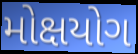
મોક્ષયોગ